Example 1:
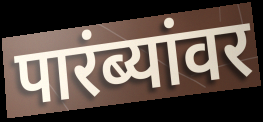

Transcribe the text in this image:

पारंब्यांवर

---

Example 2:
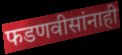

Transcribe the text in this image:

फडणवीसांनाही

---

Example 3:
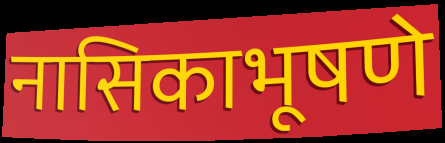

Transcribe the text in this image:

नासिकाभूषणे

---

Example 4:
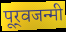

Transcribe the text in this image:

पूर्वजन्मी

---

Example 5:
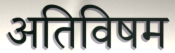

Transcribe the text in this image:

अतिविषम